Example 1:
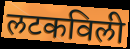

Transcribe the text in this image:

लटकविली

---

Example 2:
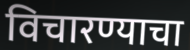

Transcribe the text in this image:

विचारण्याचा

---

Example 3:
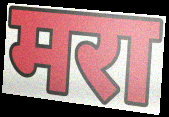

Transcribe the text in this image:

मरा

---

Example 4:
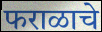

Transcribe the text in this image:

फराळाचे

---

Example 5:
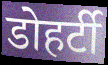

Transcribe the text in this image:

डोहर्टी